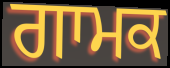
ਗਾਮਕ